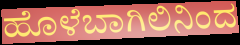
ಹೊಳೆಬಾಗಿಲಿನಿಂದ